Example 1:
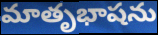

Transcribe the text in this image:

మాతృభాషను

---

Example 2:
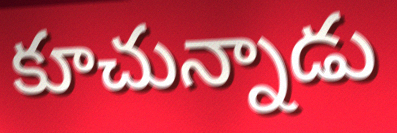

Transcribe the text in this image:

కూచున్నాడు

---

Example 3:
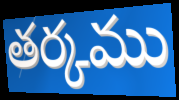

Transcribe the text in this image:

తర్కము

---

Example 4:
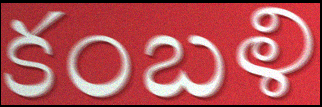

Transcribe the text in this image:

కంబళి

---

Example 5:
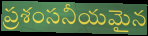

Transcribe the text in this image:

ప్రశంసనీయమైన